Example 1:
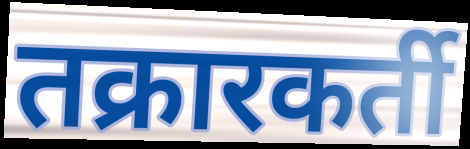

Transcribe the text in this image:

तक्रारकर्ती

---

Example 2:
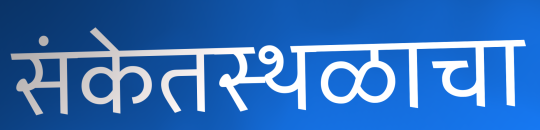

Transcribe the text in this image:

संकेतस्थळाचा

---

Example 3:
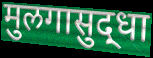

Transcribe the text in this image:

मुलगासुद्धा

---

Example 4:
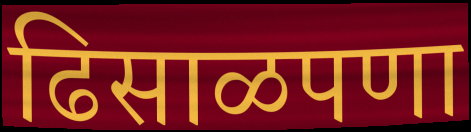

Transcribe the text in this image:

ढिसाळपणा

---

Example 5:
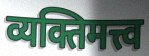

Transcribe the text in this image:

व्यक्तिमत्त्व